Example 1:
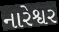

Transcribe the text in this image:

નારેશ્વર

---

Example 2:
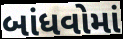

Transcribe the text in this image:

બાંધવોમાં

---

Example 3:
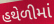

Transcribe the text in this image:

હથેળીમાં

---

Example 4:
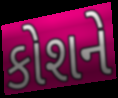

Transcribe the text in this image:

કોશને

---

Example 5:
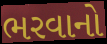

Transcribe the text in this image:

ભરવાનો